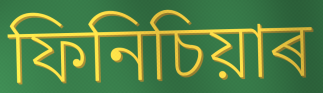
ফিনিচিয়াৰ